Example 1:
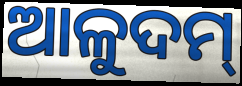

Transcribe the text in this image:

ଆଳୁଦମ୍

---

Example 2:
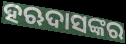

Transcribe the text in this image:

ହଋଦାସଙ୍କର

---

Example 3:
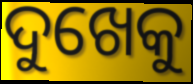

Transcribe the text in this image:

ଦୁଖେକୁ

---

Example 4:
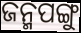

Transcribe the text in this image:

ଜନ୍ମପଙ୍ଗୁ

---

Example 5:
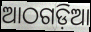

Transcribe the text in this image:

ଆଠଗଡ଼ିଆ